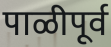
पाळीपूर्व